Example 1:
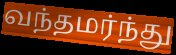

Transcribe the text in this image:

வந்தமர்ந்து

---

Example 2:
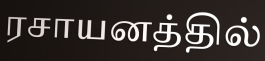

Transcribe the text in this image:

ரசாயனத்தில்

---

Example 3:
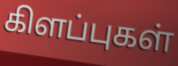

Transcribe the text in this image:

கிளப்புகள்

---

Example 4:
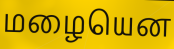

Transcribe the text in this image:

மழையென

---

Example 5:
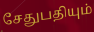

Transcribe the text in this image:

சேதுபதியும்